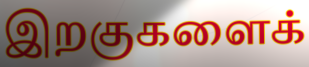
இறகுகளைக்